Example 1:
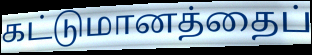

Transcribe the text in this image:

கட்டுமானத்தைப்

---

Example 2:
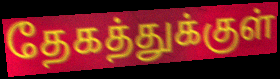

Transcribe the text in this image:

தேகத்துக்குள்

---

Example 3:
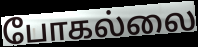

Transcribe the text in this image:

போகல்லை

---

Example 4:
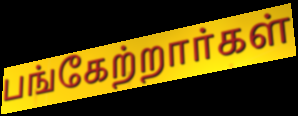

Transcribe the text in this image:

பங்கேற்றார்கள்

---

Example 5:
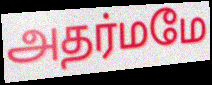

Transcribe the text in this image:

அதர்மமே